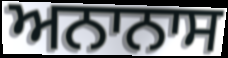
ਅਨਾਨਾਸ